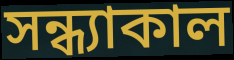
সন্ধ্যাকাল